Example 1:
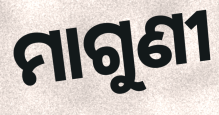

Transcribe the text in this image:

ମାଗୁଣୀ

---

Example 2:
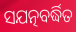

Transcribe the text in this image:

ସଯତ୍ନବର୍ଦ୍ଧିତ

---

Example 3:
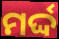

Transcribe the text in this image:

ମର୍ଦ୍ଦ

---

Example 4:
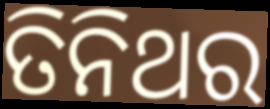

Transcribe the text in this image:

ତିନିଥର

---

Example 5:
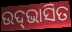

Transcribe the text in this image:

ଉଦ୍‍ଭାସିତ